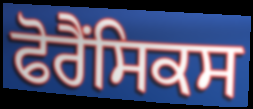
ਫੋਰੈਂਸਿਕਸ